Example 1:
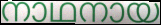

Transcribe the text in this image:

നാഥനായ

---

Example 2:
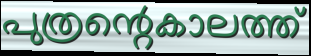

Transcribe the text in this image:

പുത്രന്റെകാലത്ത്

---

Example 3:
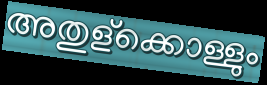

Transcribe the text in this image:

അതുള്ക്കൊള്ളും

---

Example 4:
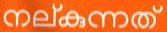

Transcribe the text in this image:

നല്കുന്നത്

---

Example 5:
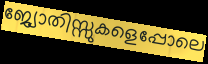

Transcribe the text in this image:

ജ്യോതിസ്സുകളെപ്പോലെ